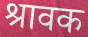
श्रावक